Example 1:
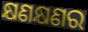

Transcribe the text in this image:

କ୍ଷଣକ୍ଷଣର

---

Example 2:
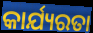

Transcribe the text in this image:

କାର୍ଯ୍ୟରତା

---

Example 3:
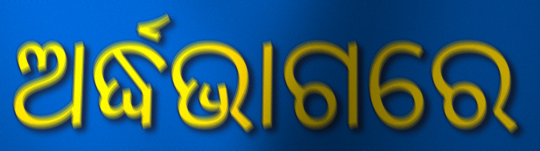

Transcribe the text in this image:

ଅର୍ଦ୍ଧଭାଗରେ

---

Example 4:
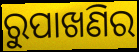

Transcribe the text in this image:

ରୁପାଖଣିର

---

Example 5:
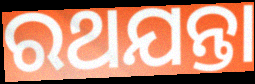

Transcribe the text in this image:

ରଥଯନ୍ତା